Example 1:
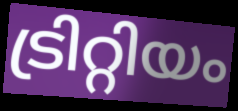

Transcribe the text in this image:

ട്രിറ്റിയം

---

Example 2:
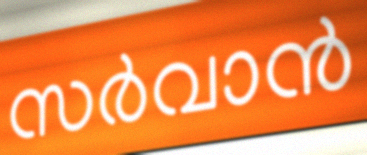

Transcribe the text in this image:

സർവാൻ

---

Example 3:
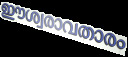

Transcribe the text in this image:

ഈശ്വരാവതാരം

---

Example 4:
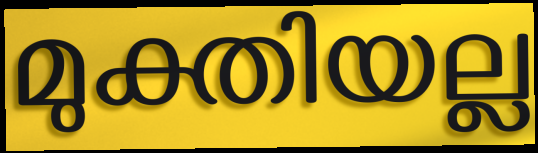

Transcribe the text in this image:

മുക്തിയല്ല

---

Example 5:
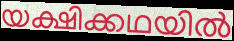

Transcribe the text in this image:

യക്ഷിക്കഥയിൽ